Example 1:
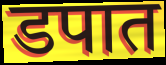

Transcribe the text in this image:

डपात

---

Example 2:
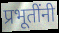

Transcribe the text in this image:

प्रभूतींनी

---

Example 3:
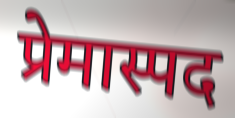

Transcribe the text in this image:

प्रेमास्पद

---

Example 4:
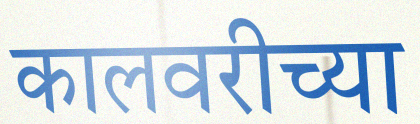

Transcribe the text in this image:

कालवरीच्या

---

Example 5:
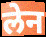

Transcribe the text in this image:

लेन